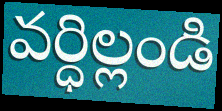
వర్ధిల్లండి